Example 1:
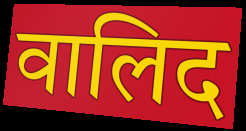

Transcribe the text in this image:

वालिद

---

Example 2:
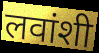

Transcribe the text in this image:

लवांशी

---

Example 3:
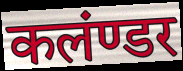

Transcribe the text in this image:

कलंण्डर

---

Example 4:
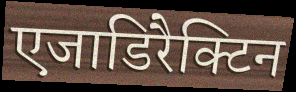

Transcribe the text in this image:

एजाडिरैक्टिन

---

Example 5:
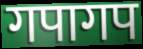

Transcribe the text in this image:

गपागप